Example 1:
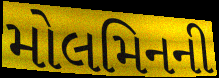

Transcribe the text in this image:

મોલમિનની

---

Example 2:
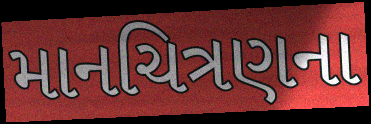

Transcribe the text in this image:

માનચિત્રણના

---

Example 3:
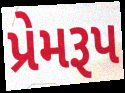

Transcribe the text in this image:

પ્રેમરૂપ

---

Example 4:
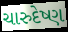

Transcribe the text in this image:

ચારુદેષ્ણ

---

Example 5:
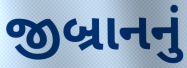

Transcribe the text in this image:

જીબ્રાનનું